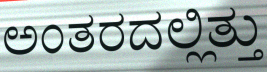
ಅಂತರದಲ್ಲಿತ್ತು